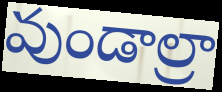
వుండాల్రా